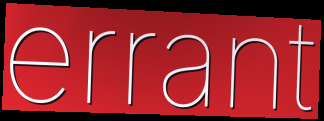
errant